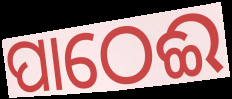
ପାଠେଈ